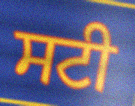
ਸਟੀ